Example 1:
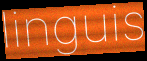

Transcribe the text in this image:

linguis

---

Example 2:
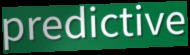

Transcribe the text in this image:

predictive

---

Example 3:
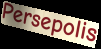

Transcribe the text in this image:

Persepolis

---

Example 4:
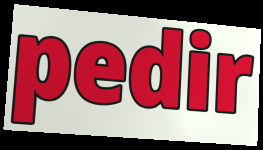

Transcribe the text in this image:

pedir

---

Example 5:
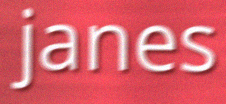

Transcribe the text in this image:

janes